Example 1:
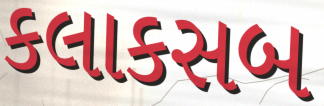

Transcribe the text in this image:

કલાકસબ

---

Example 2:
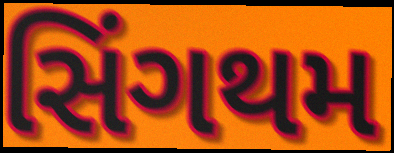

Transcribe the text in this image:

સિંગથમ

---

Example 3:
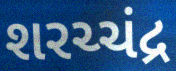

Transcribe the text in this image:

શરચ્ચંદ્ર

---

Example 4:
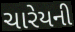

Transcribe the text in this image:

ચારેયની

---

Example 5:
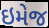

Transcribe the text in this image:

ઇમેજ